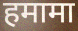
हमामा